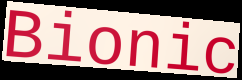
Bionic